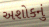
અશોકનું